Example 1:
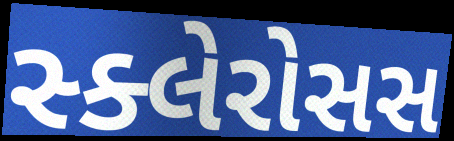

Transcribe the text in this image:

સ્ક્લેરોસસ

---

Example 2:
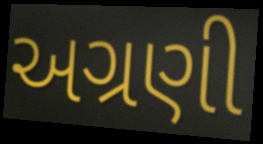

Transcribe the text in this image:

અગ્રણી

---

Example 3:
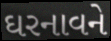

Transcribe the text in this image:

ઘરનાવને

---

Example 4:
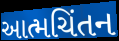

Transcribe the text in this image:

આત્મચિંતન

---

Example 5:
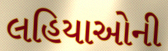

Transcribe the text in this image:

લહિયાઓની